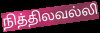
நித்திலவல்லி